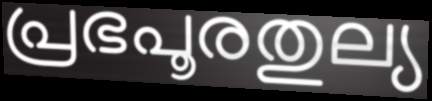
പ്രഭപൂരതുല്യ